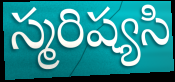
స్మరిష్యసి